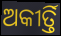
ଅକୀର୍ତ୍ତି